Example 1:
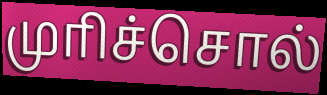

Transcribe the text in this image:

முரிச்சொல்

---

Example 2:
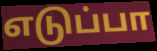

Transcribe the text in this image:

எடுப்பா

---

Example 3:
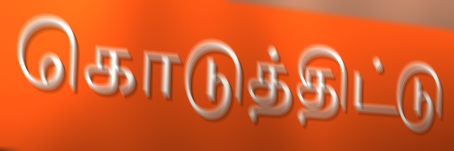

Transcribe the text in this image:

கொடுத்திட்டு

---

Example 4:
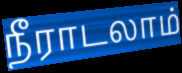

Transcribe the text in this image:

நீராடலாம்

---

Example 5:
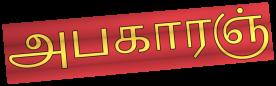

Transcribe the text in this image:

அபகாரஞ்